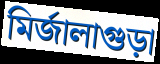
মিৰ্জালাগুড়া